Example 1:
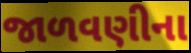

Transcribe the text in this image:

જાળવણીના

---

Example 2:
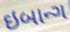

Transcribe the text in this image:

ઇબાન્ગ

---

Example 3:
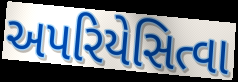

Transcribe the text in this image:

અપરિયેસિત્વા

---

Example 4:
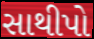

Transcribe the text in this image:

સાથીપો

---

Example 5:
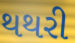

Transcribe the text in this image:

થથરી